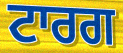
ਟਾਰਗ